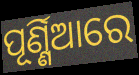
ପୂର୍ଣ୍ଣିଆରେ